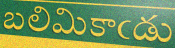
బలిమికాఁడు